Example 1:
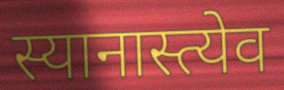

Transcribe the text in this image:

स्यानास्त्येव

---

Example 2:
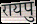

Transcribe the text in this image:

रायपु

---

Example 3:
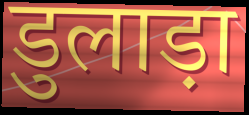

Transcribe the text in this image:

डुलाड़ा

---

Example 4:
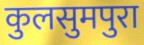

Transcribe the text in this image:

कुलसुमपुरा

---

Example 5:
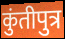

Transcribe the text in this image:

कुंतीपुत्र